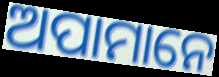
ଅପାମାନେ